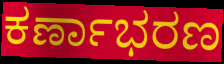
ಕರ್ಣಾಭರಣ